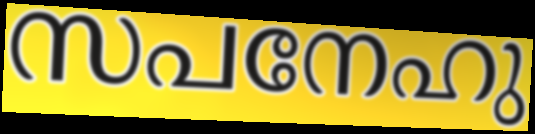
സപനേഹു